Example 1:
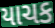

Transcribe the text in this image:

યાચક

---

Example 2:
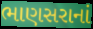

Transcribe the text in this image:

ભાણસરાનાં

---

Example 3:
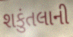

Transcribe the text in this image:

શકુંતલાની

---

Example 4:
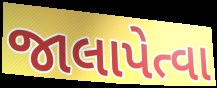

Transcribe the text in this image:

જાલાપેત્વા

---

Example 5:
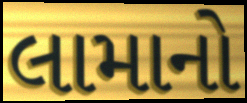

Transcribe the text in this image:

લામાનો